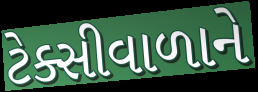
ટેક્સીવાળાને